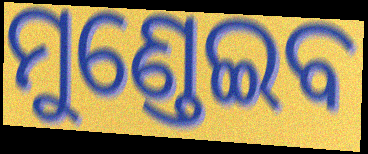
ମୁଣ୍ଡେଇବ